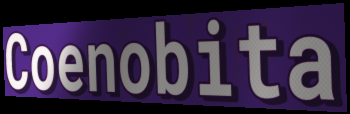
Coenobita